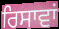
ਰਿਸਾਵਾਂ